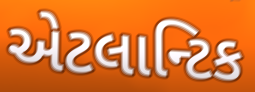
એટલાન્ટિક